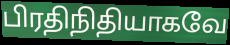
பிரதிநிதியாகவே